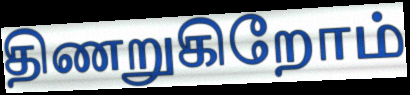
திணறுகிறோம்